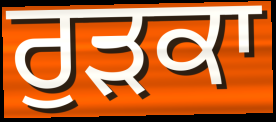
ਰੁੜਕਾ